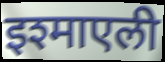
इश्माएली